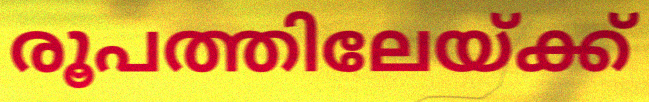
രൂപത്തിലേയ്ക്ക്